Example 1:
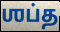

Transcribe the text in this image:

ஶப்த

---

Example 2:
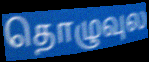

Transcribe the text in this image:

தொழுவுல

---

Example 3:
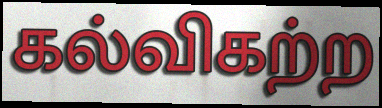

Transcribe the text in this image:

கல்விகற்ற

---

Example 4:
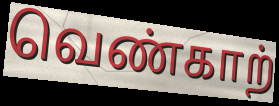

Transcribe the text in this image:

வெண்காற்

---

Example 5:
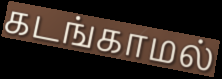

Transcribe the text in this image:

கடங்காமல்